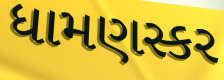
ધામણસ્કર